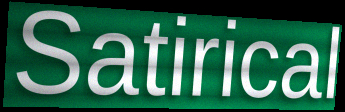
Satirical